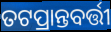
ତଟପ୍ରାନ୍ତବର୍ତ୍ତୀ